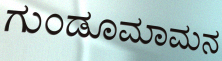
ಗುಂಡೂಮಾಮನ